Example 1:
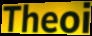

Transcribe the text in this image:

Theoi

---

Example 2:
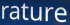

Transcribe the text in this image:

rature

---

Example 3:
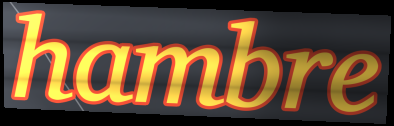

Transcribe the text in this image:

hambre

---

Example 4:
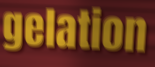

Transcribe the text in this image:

gelation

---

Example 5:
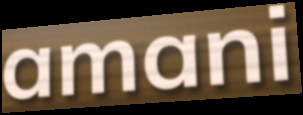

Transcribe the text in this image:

amani